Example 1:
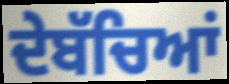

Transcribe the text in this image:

ਦੇਬੱਚਿਆਂ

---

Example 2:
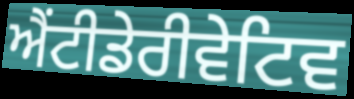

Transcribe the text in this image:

ਐਂਟੀਡੇਰੀਵੇਟਿਵ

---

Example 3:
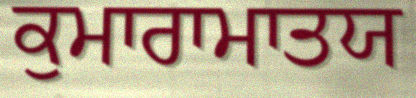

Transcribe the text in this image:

ਕੁਮਾਰਾਮਾਤਯ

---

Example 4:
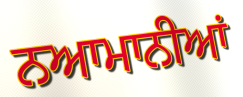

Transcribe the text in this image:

ਨਆਮਾਨੀਆਂ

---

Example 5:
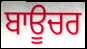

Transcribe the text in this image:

ਬਾਊਚਰ